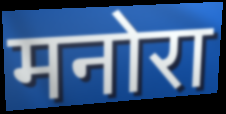
मनोरा